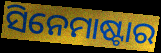
ସିନେମାଷ୍ଟାର